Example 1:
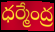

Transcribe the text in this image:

ధర్మేంద్ర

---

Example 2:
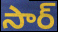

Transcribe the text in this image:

సార్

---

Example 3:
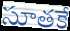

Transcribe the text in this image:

సూతకే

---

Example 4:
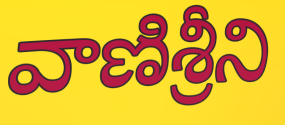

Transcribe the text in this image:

వాణిశ్రీని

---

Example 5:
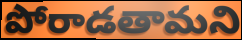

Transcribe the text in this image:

పోరాడతామని